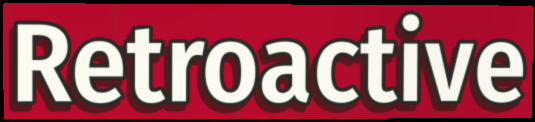
Retroactive